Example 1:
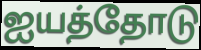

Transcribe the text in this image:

ஐயத்தோடு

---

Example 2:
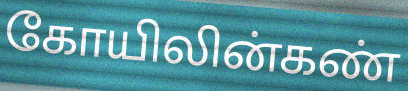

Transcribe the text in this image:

கோயிலின்கண்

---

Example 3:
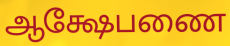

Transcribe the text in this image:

ஆக்ஷேபணை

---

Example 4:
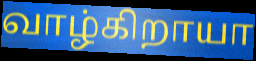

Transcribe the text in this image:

வாழ்கிறாயா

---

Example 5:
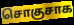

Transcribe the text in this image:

சொகுசாக